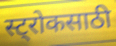
स्ट्रोकसाठी